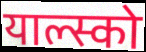
याल्स्को